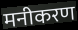
मनीकरण